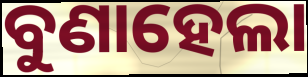
ବୁଣାହେଲା